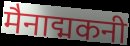
मैनाद्मकनी